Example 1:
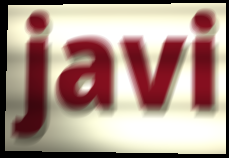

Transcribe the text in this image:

javi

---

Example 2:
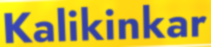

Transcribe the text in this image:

Kalikinkar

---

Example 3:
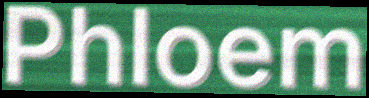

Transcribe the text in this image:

Phloem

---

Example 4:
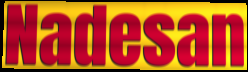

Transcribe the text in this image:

Nadesan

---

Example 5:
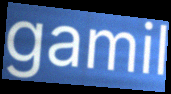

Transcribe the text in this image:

gamil